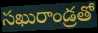
సఖురాండ్రతో